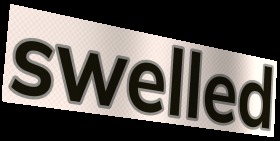
swelled